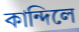
কান্দিলে